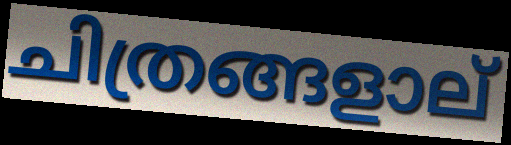
ചിത്രങ്ങളാല്